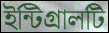
ইন্টিগ্রালটি